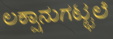
ಲಕ್ಷಾನುಗಟ್ಟಲೆ